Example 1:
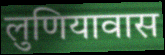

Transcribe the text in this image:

लुणियावास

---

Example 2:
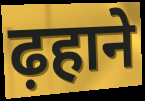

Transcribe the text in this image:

ढ़हाने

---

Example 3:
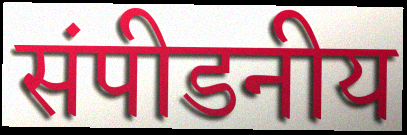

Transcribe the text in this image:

संपीडनीय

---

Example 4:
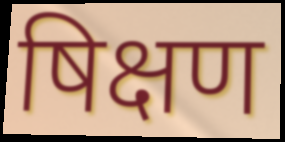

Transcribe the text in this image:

षिक्षण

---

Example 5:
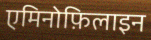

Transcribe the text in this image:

एमिनोफ़िलाइन